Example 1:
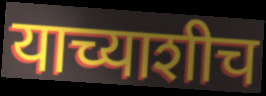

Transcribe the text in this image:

याच्याशीच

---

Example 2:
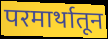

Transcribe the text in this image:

परमार्थातून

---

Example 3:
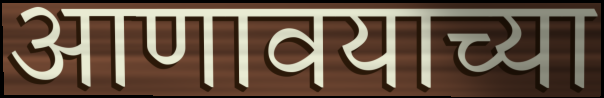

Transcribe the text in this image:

आणावयाच्या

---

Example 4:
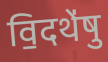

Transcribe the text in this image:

वि॒दथे॑षु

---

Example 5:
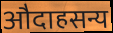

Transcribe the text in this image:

औदाहसन्य